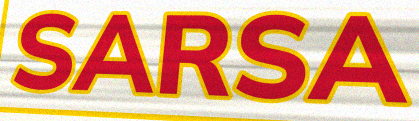
SARSA